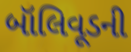
બૉલિવૂડની